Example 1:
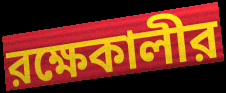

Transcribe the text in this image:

রক্ষেকালীর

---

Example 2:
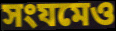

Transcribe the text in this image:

সংযমেও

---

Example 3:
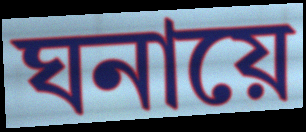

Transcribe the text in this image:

ঘনায়ে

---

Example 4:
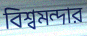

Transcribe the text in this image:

বিশ্বমন্দার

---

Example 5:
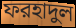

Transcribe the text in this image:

ফরহাদুল